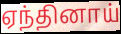
ஏந்தினாய்